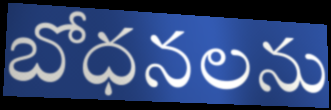
బోధనలను